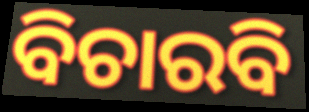
ବିଚାରବି